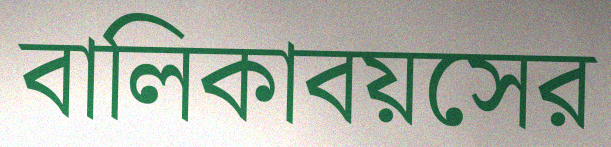
বালিকাবয়সের